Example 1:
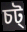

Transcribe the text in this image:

চট্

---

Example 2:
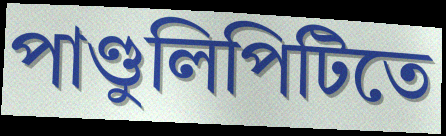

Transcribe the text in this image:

পাণ্ডুলিপিটিতে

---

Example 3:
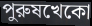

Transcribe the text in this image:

পুরুষখেকো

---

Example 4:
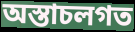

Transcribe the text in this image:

অস্তাচলগত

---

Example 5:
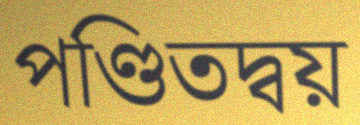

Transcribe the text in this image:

পণ্ডিতদ্বয়